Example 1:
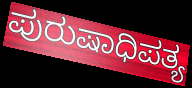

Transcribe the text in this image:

ಪುರುಷಾಧಿಪತ್ಯ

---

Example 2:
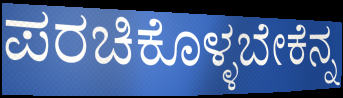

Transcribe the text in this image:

ಪರಚಿಕೊಳ್ಳಬೇಕೆನ್ನ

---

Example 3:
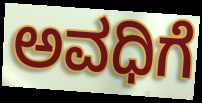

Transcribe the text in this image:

ಅವಧಿಗೆ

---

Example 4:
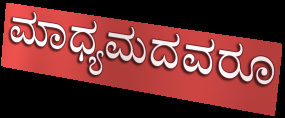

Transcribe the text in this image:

ಮಾಧ್ಯಮದವರೂ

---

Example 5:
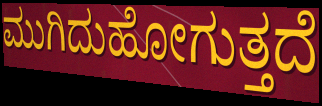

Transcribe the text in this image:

ಮುಗಿದುಹೋಗುತ್ತದೆ